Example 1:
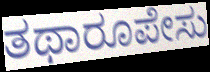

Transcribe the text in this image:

ತಥಾರೂಪೇಸು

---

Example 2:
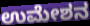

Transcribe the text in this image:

ಉಮೇಶನ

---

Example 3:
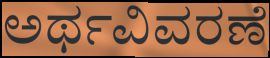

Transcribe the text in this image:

ಅರ್ಥವಿವರಣೆ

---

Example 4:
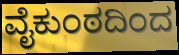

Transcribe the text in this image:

ವೈಕುಂಠದಿಂದ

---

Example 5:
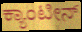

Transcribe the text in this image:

ಕ್ಯಾಂಟೀನ್